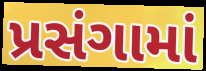
પ્રસંગામાં